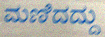
ಮಣಿದದ್ದು